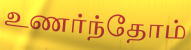
உணர்ந்தோம்